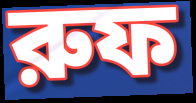
রুফ